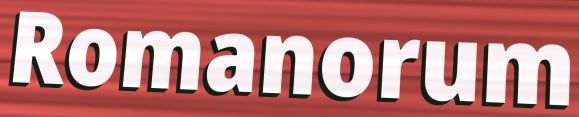
Romanorum